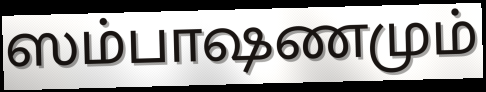
ஸம்பாஷணமும்